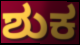
ಶುಕ